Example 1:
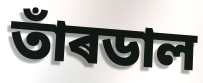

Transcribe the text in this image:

তাঁৰডাল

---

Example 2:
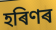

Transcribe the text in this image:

হৰিণৰ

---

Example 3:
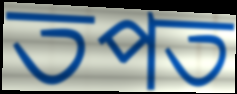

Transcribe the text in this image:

তপত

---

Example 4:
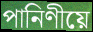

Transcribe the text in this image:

পানিণীয়ে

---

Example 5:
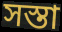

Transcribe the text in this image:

সস্তা